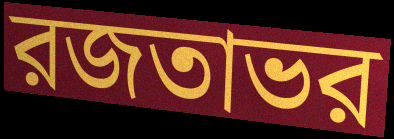
রজতাভর